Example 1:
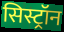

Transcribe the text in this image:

सिस्ट्रॉन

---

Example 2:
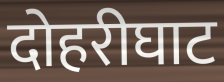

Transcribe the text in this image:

दोहरीघाट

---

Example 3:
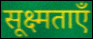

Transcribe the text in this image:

सूक्ष्मताएँ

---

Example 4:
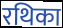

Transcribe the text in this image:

रथिका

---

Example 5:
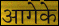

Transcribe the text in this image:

आगेके